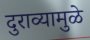
दुराव्यामुळे